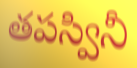
తపస్వినీ